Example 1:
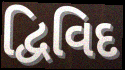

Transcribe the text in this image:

દ્વિવિદ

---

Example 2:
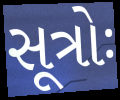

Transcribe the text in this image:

સૂત્રોઃ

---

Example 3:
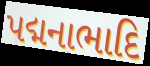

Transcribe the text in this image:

પદ્મનાભાદિ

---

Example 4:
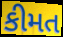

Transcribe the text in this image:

કીમત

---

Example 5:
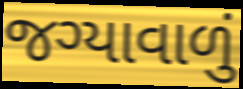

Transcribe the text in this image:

જગ્યાવાળું